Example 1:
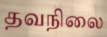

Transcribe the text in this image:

தவநிலை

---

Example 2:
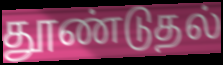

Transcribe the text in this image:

தூண்டுதல்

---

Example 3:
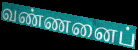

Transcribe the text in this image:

வண்ணனைப்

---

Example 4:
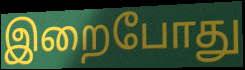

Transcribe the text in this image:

இறைபோது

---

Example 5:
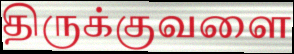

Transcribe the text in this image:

திருக்குவளை